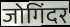
जोगिंदर